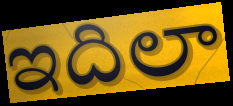
ఇదిలా